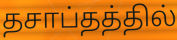
தசாப்தத்தில்